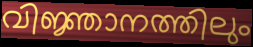
വിജ്ഞാനത്തിലും